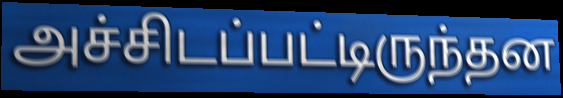
அச்சிடப்பட்டிருந்தன